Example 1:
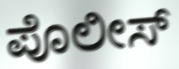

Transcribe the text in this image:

ಪೊಲೀಸ್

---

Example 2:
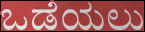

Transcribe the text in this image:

ಒಡೆಯಲು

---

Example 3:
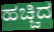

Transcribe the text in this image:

ಹಚ್ಚಿದ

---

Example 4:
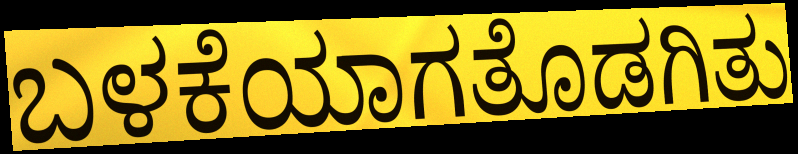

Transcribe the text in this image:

ಬಳಕೆಯಾಗತೊಡಗಿತು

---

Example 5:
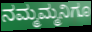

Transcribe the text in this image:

ನಮ್ಮಮ್ಮನಿಗೂ